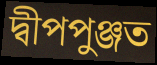
দ্বীপপুঞ্জত